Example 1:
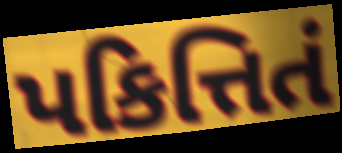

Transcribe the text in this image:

પકિત્તિતં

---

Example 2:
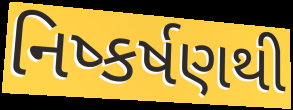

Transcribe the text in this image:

નિષ્કર્ષણથી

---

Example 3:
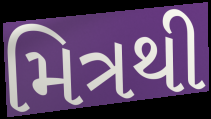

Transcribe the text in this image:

મિત્રથી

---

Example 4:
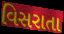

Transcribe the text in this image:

વિસરાતા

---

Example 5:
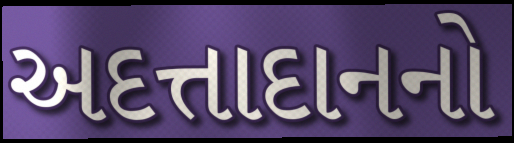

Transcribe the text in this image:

અદત્તાદાનનો